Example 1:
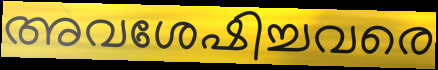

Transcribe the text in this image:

അവശേഷിച്ചവരെ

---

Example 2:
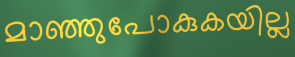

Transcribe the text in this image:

മാഞ്ഞുപോകുകയില്ല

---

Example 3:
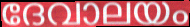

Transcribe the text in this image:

ദേവാലയം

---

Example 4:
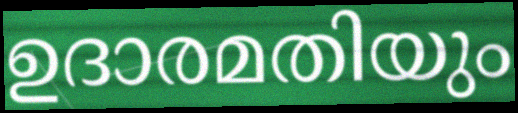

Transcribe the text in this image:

ഉദാരമതിയും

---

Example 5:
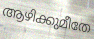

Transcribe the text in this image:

ആഴിക്കുമീതേ